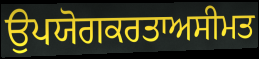
ਉਪਯੋਗਕਰਤਾਅਸੀਮਤ